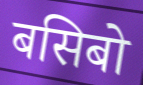
बसिबो